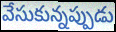
వేసుకున్నప్పుడు